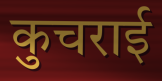
कुचराई